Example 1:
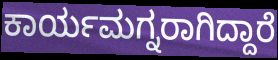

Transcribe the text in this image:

ಕಾರ್ಯಮಗ್ನರಾಗಿದ್ದಾರೆ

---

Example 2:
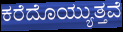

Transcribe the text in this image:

ಕರೆದೊಯ್ಯುತ್ತವೆ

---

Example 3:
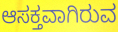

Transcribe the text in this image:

ಆಸಕ್ತವಾಗಿರುವ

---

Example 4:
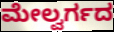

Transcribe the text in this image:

ಮೇಲ್ವರ್ಗದ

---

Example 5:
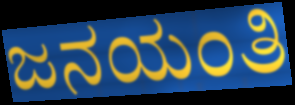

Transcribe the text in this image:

ಜನಯಂತಿ